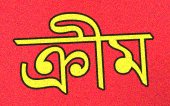
ক্ৰীম